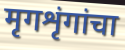
मृगशृंगांचा